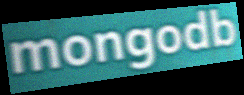
mongodb